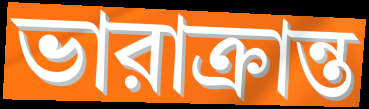
ভারাক্রান্ত